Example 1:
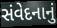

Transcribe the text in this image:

સંવેદનાનું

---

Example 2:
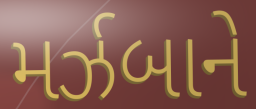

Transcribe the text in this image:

મર્ઝબાને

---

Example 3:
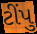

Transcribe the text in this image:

ટીંપુ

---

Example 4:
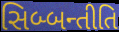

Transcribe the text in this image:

સિબ્બન્તીતિ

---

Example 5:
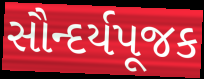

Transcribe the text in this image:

સૌન્દર્યપૂજક